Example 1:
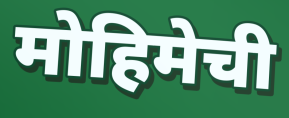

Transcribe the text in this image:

मोहिमेची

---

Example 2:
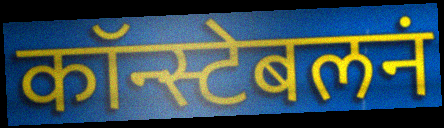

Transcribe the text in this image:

कॉन्स्टेबलनं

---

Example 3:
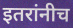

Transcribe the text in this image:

इतरांनीच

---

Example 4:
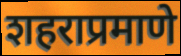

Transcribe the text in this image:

शहराप्रमाणे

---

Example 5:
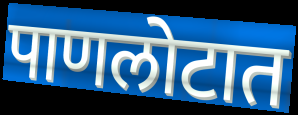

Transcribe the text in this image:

पाणलोटात